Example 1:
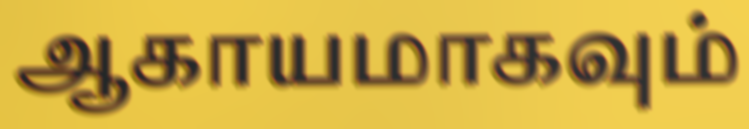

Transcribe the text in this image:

ஆகாயமாகவும்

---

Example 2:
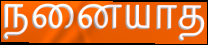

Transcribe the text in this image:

நனையாத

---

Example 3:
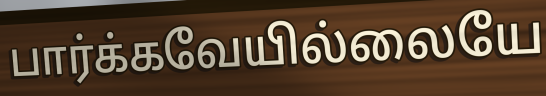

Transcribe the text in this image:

பார்க்கவேயில்லையே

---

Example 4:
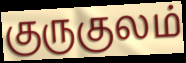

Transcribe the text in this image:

குருகுலம்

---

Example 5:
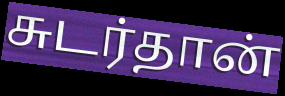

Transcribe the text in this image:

சுடர்தான்